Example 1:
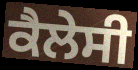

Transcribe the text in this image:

ਕੈਲੇਸੀ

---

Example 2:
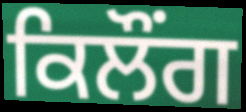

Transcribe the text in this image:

ਕਿਲੌਂਗ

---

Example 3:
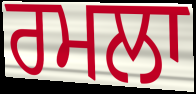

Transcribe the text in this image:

ਰਮਲਾ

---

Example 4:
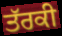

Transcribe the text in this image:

ਤੱਰਕੀ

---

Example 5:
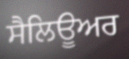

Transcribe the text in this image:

ਸੈਲਿਊਅਰ